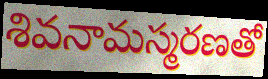
శివనామస్మరణతో